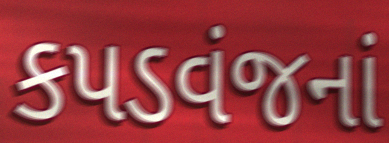
કપડવંજનાં